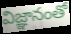
విజ్ఞానంతో